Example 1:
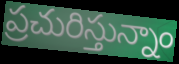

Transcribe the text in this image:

ప్రచురిస్తున్నాం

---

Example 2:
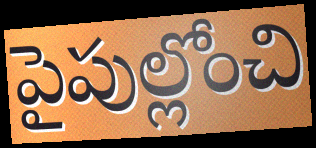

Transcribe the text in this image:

పైపుల్లోంచి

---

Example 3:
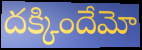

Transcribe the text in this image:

దక్కిందేమో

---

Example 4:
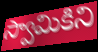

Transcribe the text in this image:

స్వామికిని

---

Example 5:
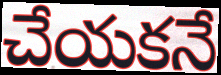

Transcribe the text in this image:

చేయకనే